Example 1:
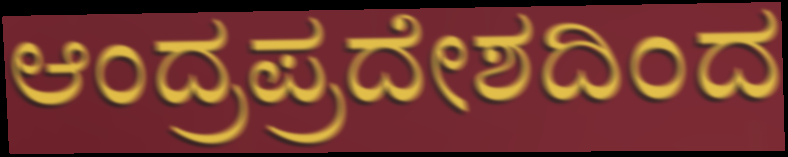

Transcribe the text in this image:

ಆಂದ್ರಪ್ರದೇಶದಿಂದ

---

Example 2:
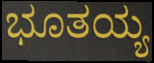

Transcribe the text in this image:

ಭೂತಯ್ಯ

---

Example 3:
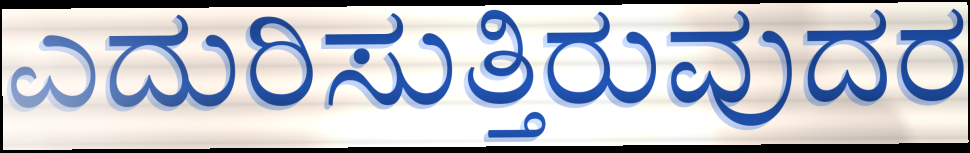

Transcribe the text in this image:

ಎದುರಿಸುತ್ತಿರುವುದರ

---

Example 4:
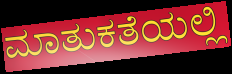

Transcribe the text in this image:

ಮಾತುಕತೆಯಲ್ಲಿ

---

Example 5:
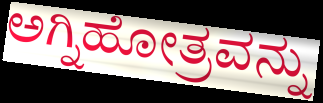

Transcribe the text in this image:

ಅಗ್ನಿಹೋತ್ರವನ್ನು